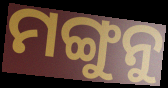
ମଙ୍ଗୁନୁ